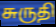
சுருதி